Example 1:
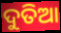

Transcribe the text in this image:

ଦୁତିଆ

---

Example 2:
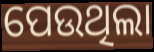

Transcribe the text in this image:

ପେଉଥିଲା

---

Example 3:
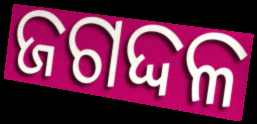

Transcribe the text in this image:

ଜଗଦ୍ଦଳ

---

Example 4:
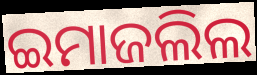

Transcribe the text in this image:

ଇମାଜଲିଲ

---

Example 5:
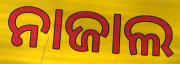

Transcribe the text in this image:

ନାଜାଲ